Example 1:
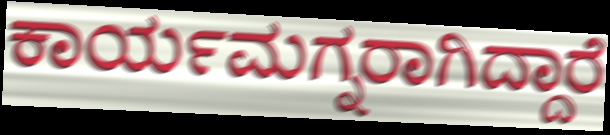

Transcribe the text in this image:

ಕಾರ್ಯಮಗ್ನರಾಗಿದ್ದಾರೆ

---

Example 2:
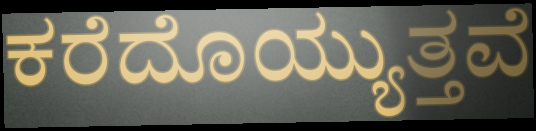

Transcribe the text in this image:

ಕರೆದೊಯ್ಯುತ್ತವೆ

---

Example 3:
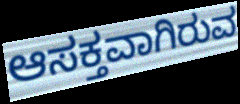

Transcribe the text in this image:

ಆಸಕ್ತವಾಗಿರುವ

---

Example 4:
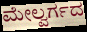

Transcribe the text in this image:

ಮೇಲ್ವರ್ಗದ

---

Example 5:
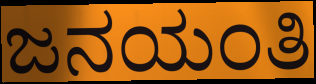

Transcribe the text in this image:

ಜನಯಂತಿ